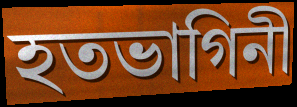
হতভাগিনী